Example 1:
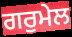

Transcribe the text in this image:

ਗਰੁਮੇਲ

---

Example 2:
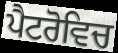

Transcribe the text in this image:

ਪੈਟਰੋਵਿਚ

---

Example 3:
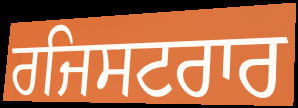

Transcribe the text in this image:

ਰਜਿਸਟਰਾਰ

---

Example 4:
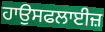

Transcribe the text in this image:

ਹਾਉਸਫਲਾਈਜ਼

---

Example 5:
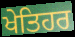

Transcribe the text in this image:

ਖੇਤਿਹਰ